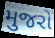
મુજરો